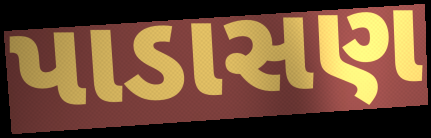
પાડાસણ